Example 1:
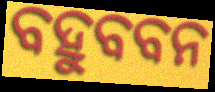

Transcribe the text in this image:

ବହୁବବନ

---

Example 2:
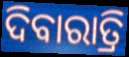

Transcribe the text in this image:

ଦିବାରାତ୍ରି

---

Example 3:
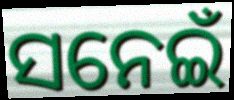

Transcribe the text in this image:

ସନେଇଁ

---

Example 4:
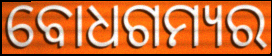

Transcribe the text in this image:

ବୋଧଗମ୍ୟର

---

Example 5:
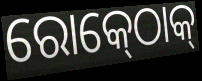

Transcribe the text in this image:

ରୋକ୍‍ଠୋକ୍